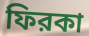
ফিরকা